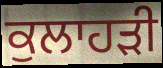
ਕੁਲਾਹੜੀ